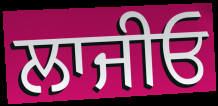
ਲਾਜੀਓ